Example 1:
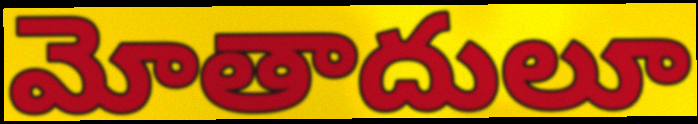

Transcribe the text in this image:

మోతాదులూ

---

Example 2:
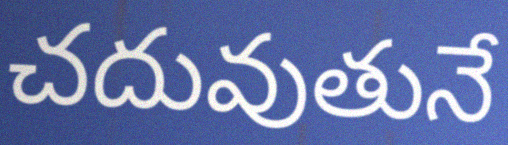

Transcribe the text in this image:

చదువుతునే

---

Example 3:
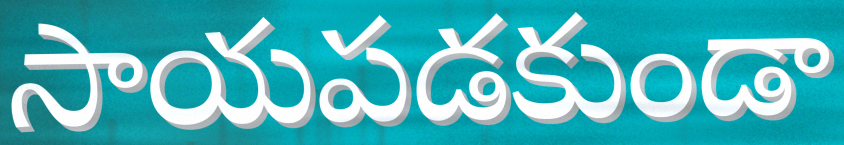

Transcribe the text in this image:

సాయపడకుండా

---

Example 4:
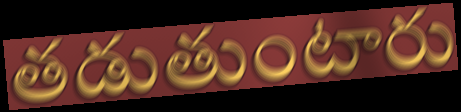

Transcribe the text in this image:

తడుతుంటారు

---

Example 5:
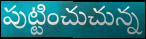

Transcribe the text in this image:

పుట్టించుచున్న